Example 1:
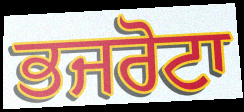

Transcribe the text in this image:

ਭਜਰੋਟਾ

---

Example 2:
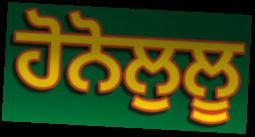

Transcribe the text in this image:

ਹੋਨੋਲੁਲੂ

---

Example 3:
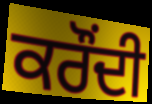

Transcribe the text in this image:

ਕਰੌਂਦੀ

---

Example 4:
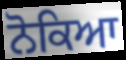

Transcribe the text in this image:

ਨੋਕਿਆ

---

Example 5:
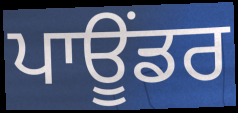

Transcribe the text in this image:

ਪਾਊਂਡਰ